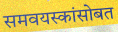
समवयस्कांसोबत